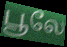
பூலே